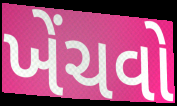
ખેંચવો